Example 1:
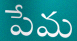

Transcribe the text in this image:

పేమ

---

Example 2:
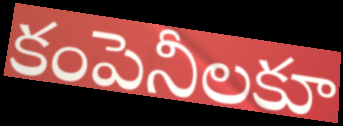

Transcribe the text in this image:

కంపెనీలకూ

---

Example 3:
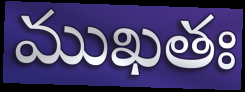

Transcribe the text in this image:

ముఖతః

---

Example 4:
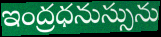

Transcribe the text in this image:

ఇంద్రధనుస్సును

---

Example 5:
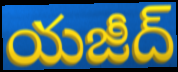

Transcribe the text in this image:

యజీద్